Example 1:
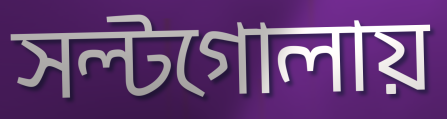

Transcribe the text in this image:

সল্টগোলায়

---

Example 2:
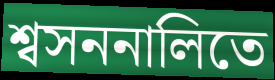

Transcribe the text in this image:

শ্বসননালিতে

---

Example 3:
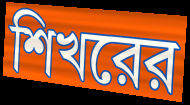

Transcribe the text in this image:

শিখরের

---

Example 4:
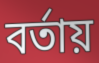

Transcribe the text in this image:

বর্তায়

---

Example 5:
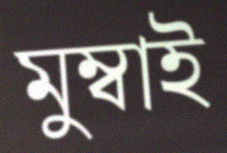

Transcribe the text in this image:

মুম্বাই